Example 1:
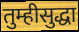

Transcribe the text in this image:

तुम्हीसुद्धा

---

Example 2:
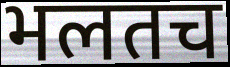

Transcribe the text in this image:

भलतच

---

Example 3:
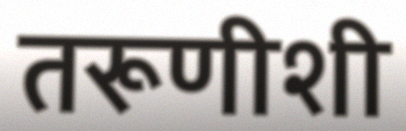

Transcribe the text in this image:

तरूणीशी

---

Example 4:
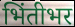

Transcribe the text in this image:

भिंतीभर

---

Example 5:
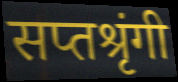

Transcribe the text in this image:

सप्तश्रृंगी